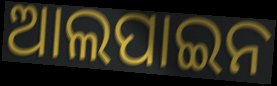
ଆଲପାଇନ